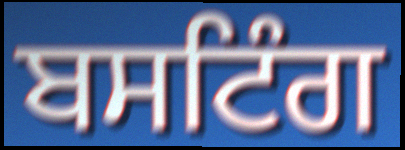
ਬਸਟਿੰਗ